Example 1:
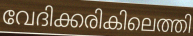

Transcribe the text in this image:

വേദിക്കരികിലെത്തി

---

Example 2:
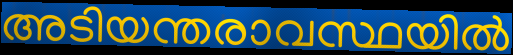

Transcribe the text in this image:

അടിയന്തരാവസ്ഥയിൽ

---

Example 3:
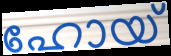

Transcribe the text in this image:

ഹോയ്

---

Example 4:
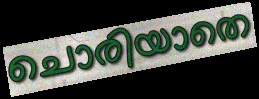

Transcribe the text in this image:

ചൊരിയാതെ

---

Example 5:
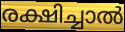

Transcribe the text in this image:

രക്ഷിച്ചാൽ